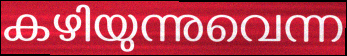
കഴിയുന്നുവെന്ന